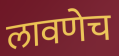
लावणेच